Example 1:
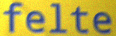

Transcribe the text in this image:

felte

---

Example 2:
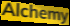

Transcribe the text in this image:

Alchemy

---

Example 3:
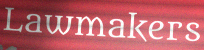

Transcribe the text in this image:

Lawmakers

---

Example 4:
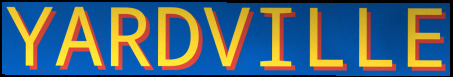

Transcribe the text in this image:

YARDVILLE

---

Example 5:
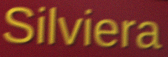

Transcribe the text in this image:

Silviera